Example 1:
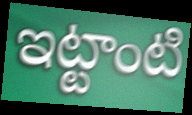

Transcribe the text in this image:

ఇట్టాంటి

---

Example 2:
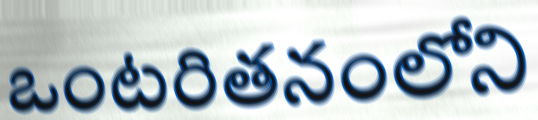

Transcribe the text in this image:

ఒంటరితనంలోని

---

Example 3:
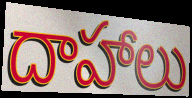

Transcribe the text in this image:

దాహాలు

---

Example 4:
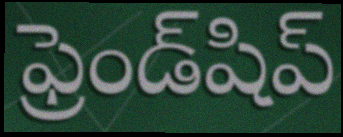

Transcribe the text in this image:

ఫ్రెండ్‌షిప్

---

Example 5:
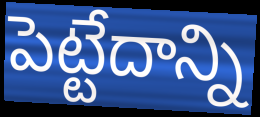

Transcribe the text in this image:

పెట్టేదాన్ని